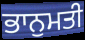
ਭਾਨੁਮਤੀ